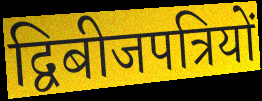
द्विबीजपत्रियों